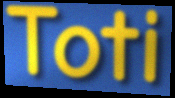
Toti